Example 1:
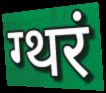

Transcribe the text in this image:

ग्थरं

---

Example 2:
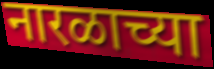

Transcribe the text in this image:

नारळाच्या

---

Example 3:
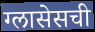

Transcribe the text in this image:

ग्लासेसची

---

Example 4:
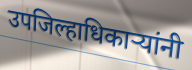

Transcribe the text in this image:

उपजिल्हाधिकाऱ्यांनी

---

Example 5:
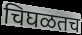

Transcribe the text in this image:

चिघळतच